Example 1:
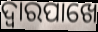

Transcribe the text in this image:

ଦ୍ୱାରପାଖେ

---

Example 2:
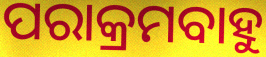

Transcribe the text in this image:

ପରାକ୍ରମବାହୁ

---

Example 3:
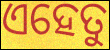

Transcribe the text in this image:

ଏହେତୁ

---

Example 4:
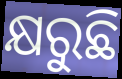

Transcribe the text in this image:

କ୍ଷରୁଛି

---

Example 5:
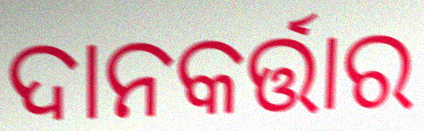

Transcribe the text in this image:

ଦାନକର୍ତ୍ତାର